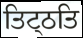
ਤਿਟ੍ਠਤਿ